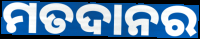
ମତଦାନର